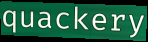
quackery